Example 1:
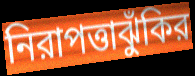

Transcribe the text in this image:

নিরাপত্তাঝুঁকির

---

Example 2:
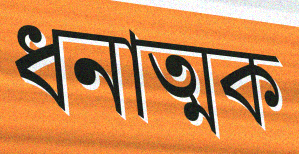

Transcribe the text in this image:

ধনাত্মক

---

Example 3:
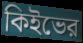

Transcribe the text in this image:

কিইভের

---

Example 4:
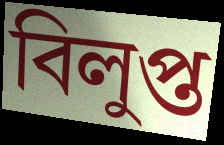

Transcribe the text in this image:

বিলুপ্ত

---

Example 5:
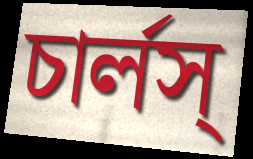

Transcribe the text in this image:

চার্লস্